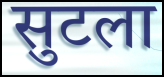
सुटला